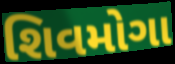
શિવમોગા